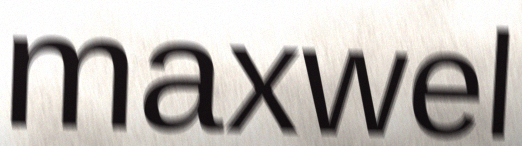
maxwel